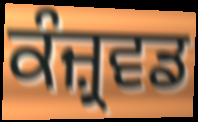
ਕੰਜ਼੍ਰਵਡ